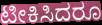
ಟೀಕಿಸಿದರೂ